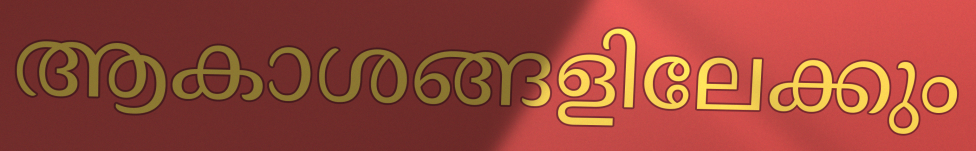
ആകാശങ്ങളിലേക്കും